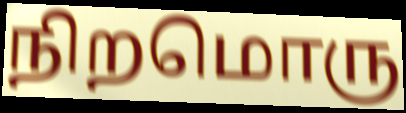
நிறமொரு